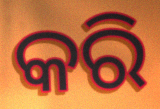
କରି